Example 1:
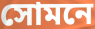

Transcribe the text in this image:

সোমনে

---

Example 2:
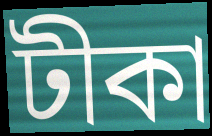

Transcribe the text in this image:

টীকা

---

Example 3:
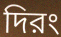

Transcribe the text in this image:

দিরং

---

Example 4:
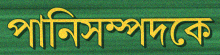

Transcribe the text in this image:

পানিসম্পদকে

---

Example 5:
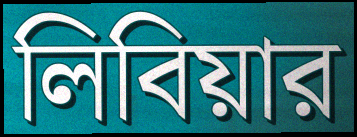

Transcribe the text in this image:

লিবিয়ার